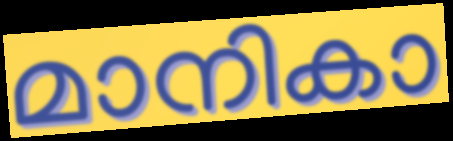
മാനികാ